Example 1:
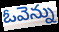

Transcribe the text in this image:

ఓవెన్ను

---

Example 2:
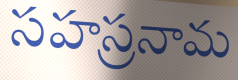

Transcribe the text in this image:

సహస్రనామ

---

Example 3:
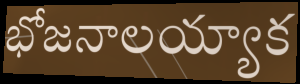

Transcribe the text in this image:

భోజనాలయ్యాక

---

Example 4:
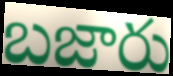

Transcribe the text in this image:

బజారు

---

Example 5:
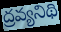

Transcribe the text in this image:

ద్రవ్యనిథి